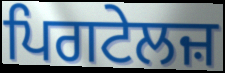
ਪਿਗਟੇਲਜ਼